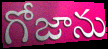
గోజాను